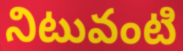
నిటువంటి